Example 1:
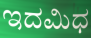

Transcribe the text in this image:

ಇದಮಿಧ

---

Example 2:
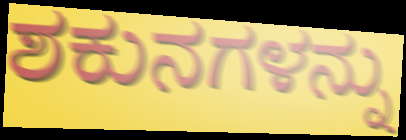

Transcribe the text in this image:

ಶಕುನಗಳನ್ನು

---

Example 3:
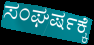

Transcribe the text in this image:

ಸಂಘರ್ಷಕ್ಕೆ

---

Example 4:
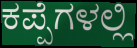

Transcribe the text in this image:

ಕಪ್ಪೆಗಳಲ್ಲಿ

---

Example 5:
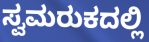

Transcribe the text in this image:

ಸ್ವಮರುಕದಲ್ಲಿ